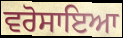
ਵਰੋਸਾਇਆ